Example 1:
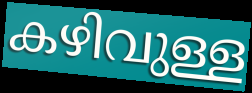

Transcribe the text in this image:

കഴിവുള്ള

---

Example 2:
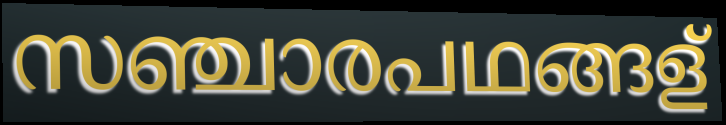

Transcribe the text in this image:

സഞ്ചാരപഥങ്ങള്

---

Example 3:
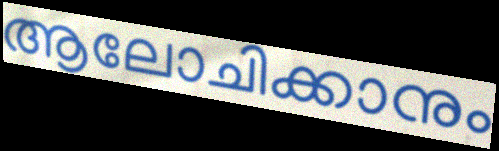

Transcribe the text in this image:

ആലോചിക്കാനും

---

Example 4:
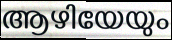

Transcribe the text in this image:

ആഴിയേയും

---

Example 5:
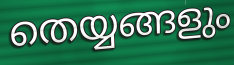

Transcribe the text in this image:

തെയ്യങ്ങളും